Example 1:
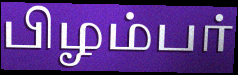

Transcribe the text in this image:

பிழம்பர்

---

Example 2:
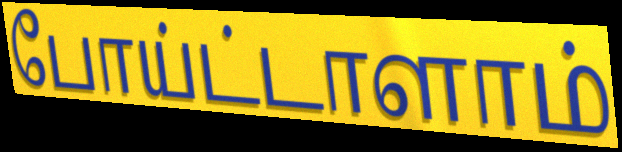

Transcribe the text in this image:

போய்ட்டாளாம்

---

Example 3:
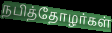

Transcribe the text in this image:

நபித்தோழர்கள்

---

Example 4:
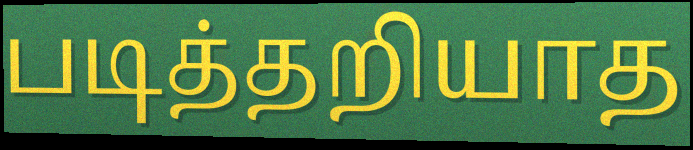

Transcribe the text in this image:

படித்தறியாத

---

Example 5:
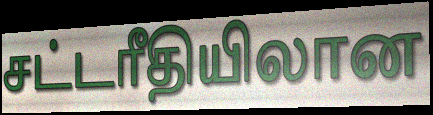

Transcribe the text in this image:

சட்டரீதியிலான